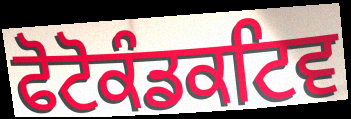
ਫੋਟੋਕੰਡਕਟਿਵ